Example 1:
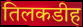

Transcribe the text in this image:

तिलकडीह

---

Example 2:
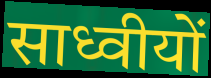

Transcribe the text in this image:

साध्वीयों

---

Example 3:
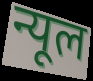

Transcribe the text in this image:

न्यूल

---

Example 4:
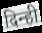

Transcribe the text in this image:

दिन्ही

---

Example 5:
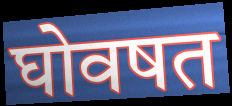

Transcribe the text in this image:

घोवषत